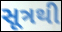
સૂત્રથી